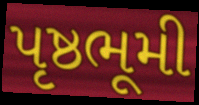
પૃષ્ઠભૂમી